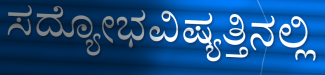
ಸದ್ಯೋಭವಿಷ್ಯತ್ತಿನಲ್ಲಿ